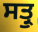
ਸਤ੍ਰੁ